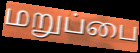
மறுப்பை